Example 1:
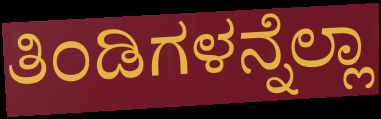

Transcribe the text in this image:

ತಿಂಡಿಗಳನ್ನೆಲ್ಲಾ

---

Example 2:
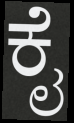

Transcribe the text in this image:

ಕೈ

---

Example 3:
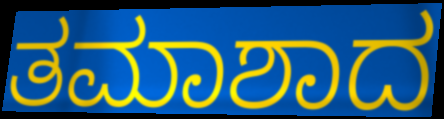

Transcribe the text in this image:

ತಮಾಶಾದ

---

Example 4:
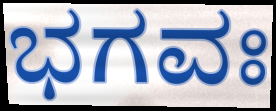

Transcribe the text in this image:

ಭಗವಃ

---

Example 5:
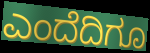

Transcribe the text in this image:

ಎಂದೆದಿಗೂ